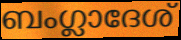
ബംഗ്ലാദേശ്